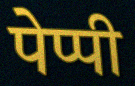
पेप्पी